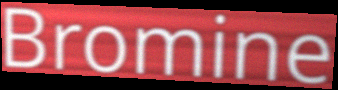
Bromine